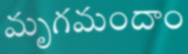
మృగమందాం